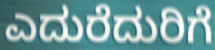
ಎದುರೆದುರಿಗೆ